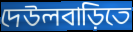
দেউলবাড়িতে